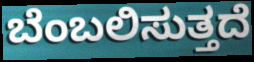
ಬೆಂಬಲಿಸುತ್ತದೆ